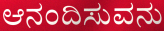
ಆನಂದಿಸುವನು